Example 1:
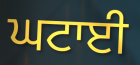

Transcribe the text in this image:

ਘਟਾਈ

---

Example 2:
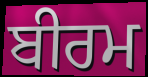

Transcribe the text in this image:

ਬੀਰਮ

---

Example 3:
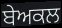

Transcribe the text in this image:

ਬੇਅਕਲ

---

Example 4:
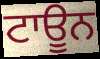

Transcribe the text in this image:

ਟਾਊਨ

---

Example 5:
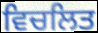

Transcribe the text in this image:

ਵਿਚਲਿਤ